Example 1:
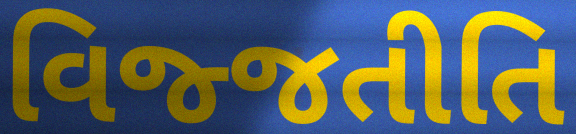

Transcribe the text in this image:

વિજ્જતીતિ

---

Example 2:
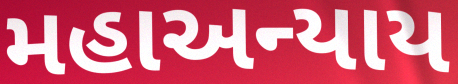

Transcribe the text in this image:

મહાઅન્યાય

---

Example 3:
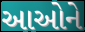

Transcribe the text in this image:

આઓને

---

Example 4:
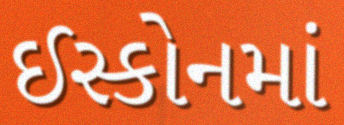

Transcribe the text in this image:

ઈસ્કોનમાં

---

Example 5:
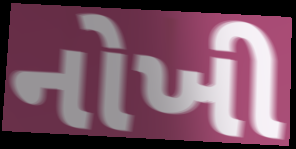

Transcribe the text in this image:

નોખી